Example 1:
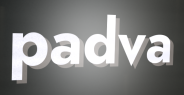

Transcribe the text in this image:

padva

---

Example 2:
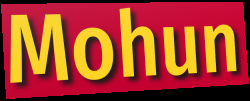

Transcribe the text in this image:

Mohun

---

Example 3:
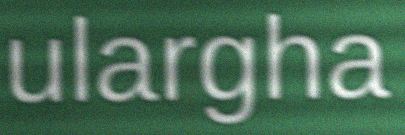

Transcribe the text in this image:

ulargha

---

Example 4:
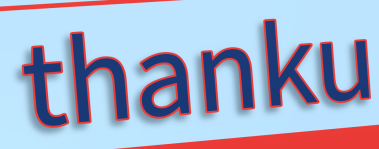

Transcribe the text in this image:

thanku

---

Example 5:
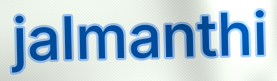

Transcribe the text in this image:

jalmanthi